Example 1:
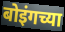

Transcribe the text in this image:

बोइंगच्या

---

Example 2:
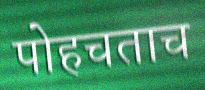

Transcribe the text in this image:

पोहचताच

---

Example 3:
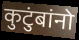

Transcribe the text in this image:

कुटुंबांनो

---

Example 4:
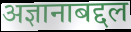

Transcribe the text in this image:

अज्ञानाबद्दल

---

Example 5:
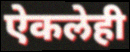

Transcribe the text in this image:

ऐकलेही